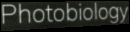
Photobiology